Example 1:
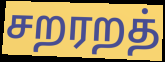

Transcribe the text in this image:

சறரறத்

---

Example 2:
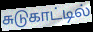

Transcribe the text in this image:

சுடுகாட்டில்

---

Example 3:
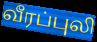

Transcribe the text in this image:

வீரப்புலி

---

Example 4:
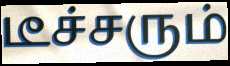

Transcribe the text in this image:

டீச்சரும்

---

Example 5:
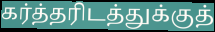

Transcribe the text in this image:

கர்த்தரிடத்துக்குத்